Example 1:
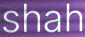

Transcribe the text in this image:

shah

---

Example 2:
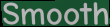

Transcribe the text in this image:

Smooth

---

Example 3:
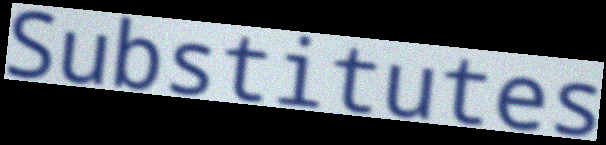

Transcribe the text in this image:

Substitutes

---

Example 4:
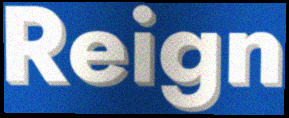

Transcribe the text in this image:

Reign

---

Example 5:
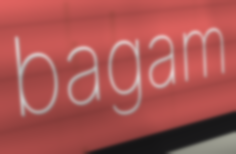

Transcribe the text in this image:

bagam